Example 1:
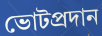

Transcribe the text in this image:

ভোটপ্রদান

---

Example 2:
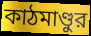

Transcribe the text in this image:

কাঠমাণ্ডুর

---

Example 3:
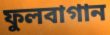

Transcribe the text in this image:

ফুলবাগান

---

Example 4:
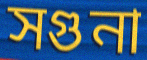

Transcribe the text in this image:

সগুনা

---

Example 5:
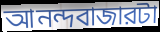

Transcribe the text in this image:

আনন্দবাজারটা